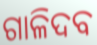
ଗାଳିଦବ